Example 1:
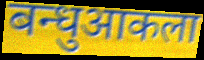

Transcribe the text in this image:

बन्धुआकला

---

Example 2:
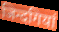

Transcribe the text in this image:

जिन्दगियां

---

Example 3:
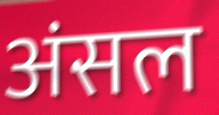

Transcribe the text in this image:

अंसल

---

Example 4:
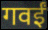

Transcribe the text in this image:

गवईं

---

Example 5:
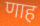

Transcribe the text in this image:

णाह